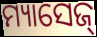
ମ୍ୟାସେଜ୍